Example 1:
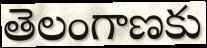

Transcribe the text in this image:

తెలంగాణకు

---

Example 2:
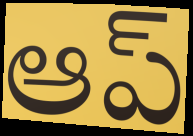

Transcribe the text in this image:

ఆప్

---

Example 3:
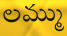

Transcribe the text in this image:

లమ్ము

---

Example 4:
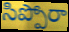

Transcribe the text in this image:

సిప్పోరా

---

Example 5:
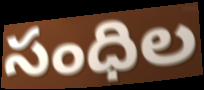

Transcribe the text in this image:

సంధిల